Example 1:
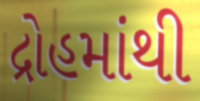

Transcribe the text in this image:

દ્રોહમાંથી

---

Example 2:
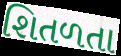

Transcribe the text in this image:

શિતળતા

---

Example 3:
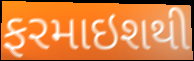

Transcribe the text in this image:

ફરમાઇશથી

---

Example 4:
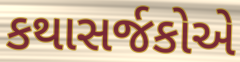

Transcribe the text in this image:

કથાસર્જકોએ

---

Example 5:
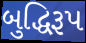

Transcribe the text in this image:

બુદ્ધિરૂપ